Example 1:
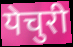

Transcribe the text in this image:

येचुरी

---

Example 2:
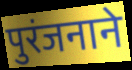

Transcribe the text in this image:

पुरंजनाने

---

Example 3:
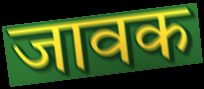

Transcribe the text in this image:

जावक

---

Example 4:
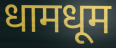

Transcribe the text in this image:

धामधूम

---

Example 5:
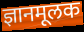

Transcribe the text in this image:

ज्ञानमूलक